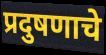
प्रदुषणाचे